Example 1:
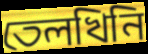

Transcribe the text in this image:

তেলখিনি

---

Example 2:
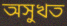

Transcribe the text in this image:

অসুখত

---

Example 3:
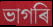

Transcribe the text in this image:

ভাগৰি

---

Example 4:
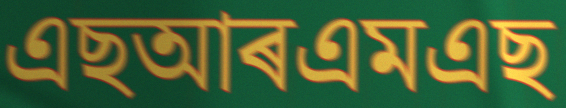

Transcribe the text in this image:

এছআৰএমএছ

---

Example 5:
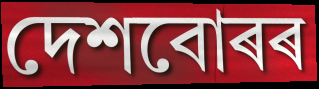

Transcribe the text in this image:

দেশবোৰৰ